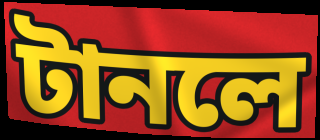
টানলে